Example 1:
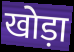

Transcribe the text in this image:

खोड़ा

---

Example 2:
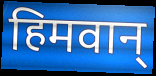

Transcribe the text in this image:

हिमवान्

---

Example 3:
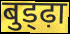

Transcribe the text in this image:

बुड्ढ़ा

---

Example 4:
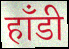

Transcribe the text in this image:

हाँडी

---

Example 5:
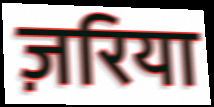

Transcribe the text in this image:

ज़रिया